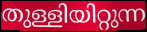
തുള്ളിയിറ്റുന്ന